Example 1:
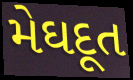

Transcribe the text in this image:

મેઘદૂત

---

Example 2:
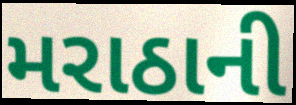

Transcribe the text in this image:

મરાઠાની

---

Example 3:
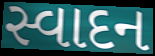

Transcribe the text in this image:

સ્વાદન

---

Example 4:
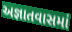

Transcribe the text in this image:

અજ્ઞાતવાસમાં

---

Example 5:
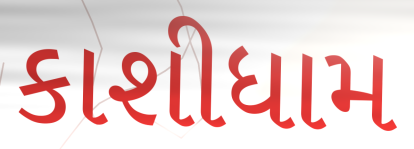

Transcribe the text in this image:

કાશીધામ